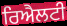
ਰਿਐਲਟੀ